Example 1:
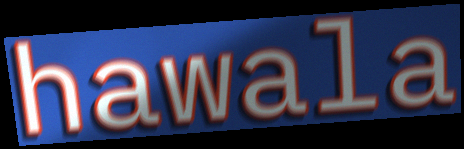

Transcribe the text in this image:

hawala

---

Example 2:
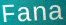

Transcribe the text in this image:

Fana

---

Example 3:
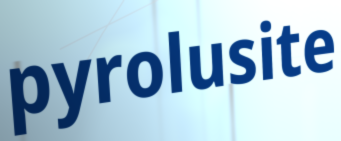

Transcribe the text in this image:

pyrolusite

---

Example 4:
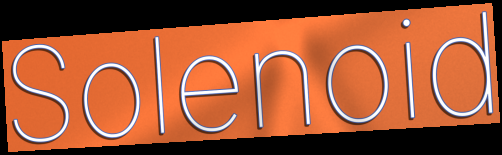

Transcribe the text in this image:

Solenoid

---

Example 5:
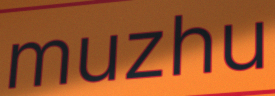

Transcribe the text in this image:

muzhu